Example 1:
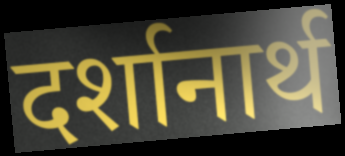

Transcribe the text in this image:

दर्शानार्थ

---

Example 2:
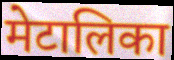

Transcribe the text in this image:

मेटालिका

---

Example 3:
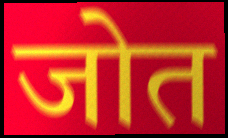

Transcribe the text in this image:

जोत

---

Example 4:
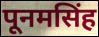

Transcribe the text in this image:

पूनमसिंह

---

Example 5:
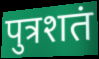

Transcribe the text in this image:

पुत्रशतं